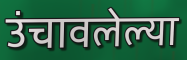
उंचावलेल्या